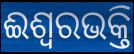
ଈଶ୍ୱରଭକ୍ତି